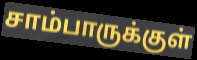
சாம்பாருக்குள்